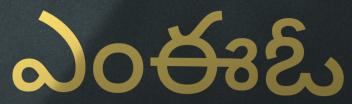
ఎంఈఓ